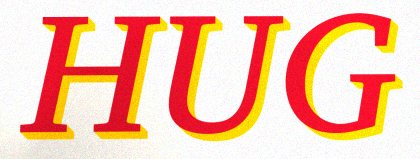
HUG